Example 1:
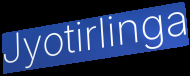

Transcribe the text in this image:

Jyotirlinga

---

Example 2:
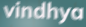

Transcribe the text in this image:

vindhya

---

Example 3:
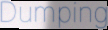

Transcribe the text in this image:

Dumping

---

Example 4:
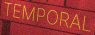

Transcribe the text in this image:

TEMPORAL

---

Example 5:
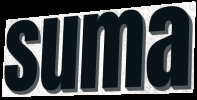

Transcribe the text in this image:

suma